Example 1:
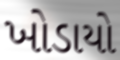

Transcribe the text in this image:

ખોડાયો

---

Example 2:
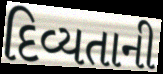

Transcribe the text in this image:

દિવ્યતાની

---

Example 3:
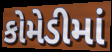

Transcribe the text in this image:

કોમેડીમાં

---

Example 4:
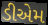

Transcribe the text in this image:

ડીએમ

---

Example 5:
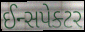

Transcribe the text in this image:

ઈન્સપેક્ટર